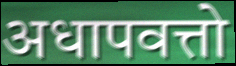
अधापवत्तो